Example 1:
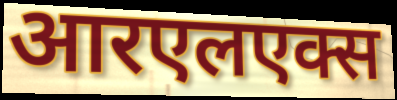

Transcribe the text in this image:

आरएलएक्स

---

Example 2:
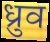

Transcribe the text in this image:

ध्रुव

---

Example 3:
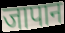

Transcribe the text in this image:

जापान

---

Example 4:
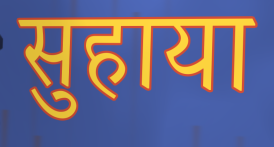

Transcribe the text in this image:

सुहाया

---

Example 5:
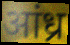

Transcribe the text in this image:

आंध्र